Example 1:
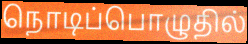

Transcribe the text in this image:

நொடிப்பொழுதில்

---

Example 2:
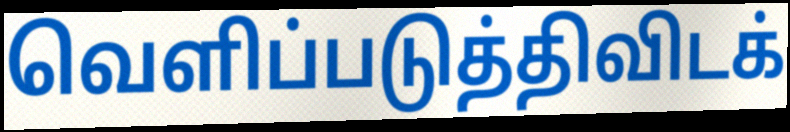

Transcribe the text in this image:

வெளிப்படுத்திவிடக்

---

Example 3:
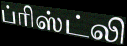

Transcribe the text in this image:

ப்ரிஸ்ட்லி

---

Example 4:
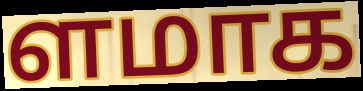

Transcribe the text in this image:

ளமாக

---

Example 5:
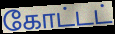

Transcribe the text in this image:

கோட்டட்